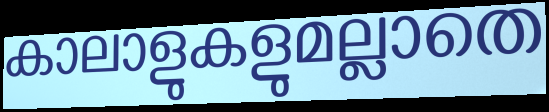
കാലാളുകളുമല്ലാതെ